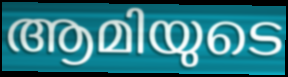
ആമിയുടെ